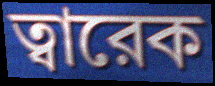
ত্বারেক